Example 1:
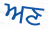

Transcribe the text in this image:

ਅਣ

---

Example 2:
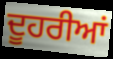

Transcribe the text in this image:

ਦੂਹਰੀਆਂ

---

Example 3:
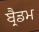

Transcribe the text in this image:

ਬ੍ਰੈਡਮ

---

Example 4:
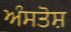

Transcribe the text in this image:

ਅੰਸਤੋਸ਼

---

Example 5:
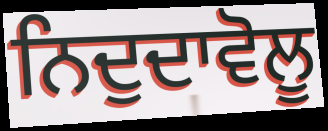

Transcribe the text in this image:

ਨਿਦੁਦਾਵੋਲੂ